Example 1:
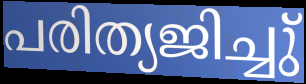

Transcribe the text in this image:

പരിത്യജിച്ചു്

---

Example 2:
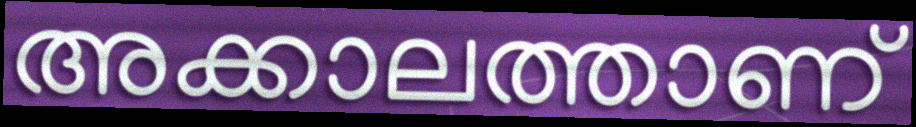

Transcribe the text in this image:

അക്കാലത്താണ്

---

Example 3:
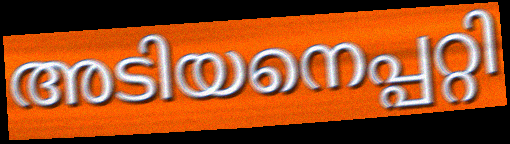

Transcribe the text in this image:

അടിയനെപ്പറ്റി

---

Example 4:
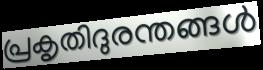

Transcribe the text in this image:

പ്രകൃതിദുരന്തങ്ങൾ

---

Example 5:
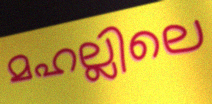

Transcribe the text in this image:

മഹല്ലിലെ